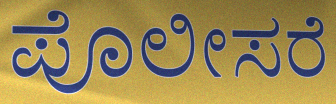
ಪೊಲೀಸರೆ